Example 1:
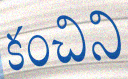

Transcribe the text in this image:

కంచిని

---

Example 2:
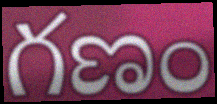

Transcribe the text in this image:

గణం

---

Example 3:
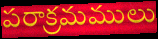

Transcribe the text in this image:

పరాక్రమములు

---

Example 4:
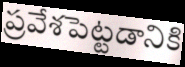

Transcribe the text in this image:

ప్రవేశపెట్టడానికి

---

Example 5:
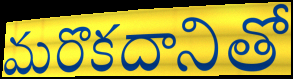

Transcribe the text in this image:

మరొకదానితో